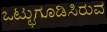
ಒಟ್ಟುಗೂಡಿಸಿರುವ